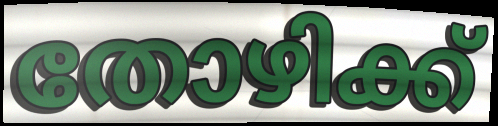
തോഴിക്ക്